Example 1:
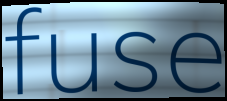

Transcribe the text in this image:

fuse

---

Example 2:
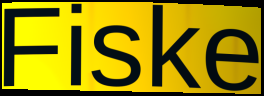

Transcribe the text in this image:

Fiske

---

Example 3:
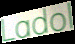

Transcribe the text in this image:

Ladol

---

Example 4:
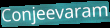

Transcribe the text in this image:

Conjeevaram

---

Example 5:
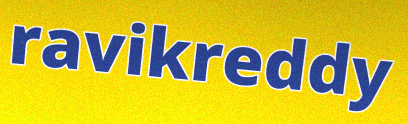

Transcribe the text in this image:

ravikreddy